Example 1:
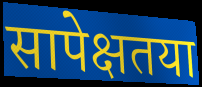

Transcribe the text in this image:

सापेक्षतया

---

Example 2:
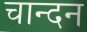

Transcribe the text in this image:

चान्दन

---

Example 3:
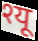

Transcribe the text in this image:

श्यू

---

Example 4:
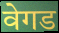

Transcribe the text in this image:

वेगड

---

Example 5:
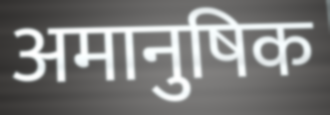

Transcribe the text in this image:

अमानुषिक